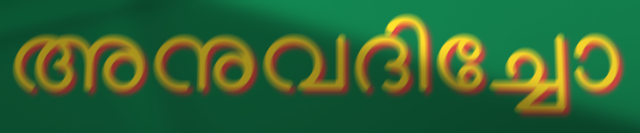
അനുവദിച്ചോ